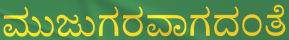
ಮುಜುಗರವಾಗದಂತೆ